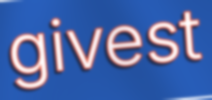
givest